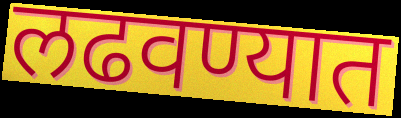
लढवण्यात